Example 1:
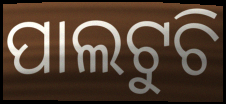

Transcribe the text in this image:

ପାଲଟୁଚି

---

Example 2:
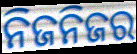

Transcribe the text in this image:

ନିଜନିଜର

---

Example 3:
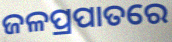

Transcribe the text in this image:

ଜଳପ୍ରପାତରେ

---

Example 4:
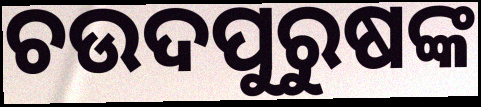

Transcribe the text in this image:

ଚଉଦପୁରୁଷଙ୍କ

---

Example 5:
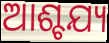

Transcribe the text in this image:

ଆଶ୍ଚଯ୍ୟ